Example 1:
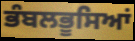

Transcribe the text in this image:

ਭੰਬਲਭੂਸਿਆਂ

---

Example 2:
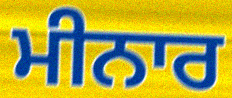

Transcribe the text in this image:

ਮੀਨਾਰ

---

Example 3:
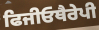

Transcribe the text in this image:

ਫਿਜੀਓਥੈਰੇਪੀ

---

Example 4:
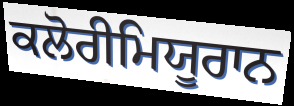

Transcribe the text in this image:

ਕਲੋਰੀਮਿਯੂਰਾਨ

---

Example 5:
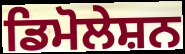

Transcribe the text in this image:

ਡਿਮੋਲੇਸ਼ਨ